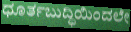
ಧೂರ್ತಬುದ್ಧಿಯಿಂದಲೇ